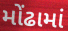
મોંઢામાં